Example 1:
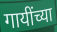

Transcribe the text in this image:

गायींच्या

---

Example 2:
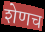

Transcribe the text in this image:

शेणच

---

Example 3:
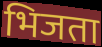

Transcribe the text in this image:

भिजता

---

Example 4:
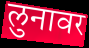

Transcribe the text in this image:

लुनावर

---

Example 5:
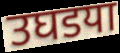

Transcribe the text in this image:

उघडया